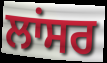
ਲਾਂਸਰ